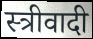
स्त्रीवादी